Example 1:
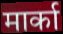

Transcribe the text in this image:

मार्का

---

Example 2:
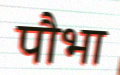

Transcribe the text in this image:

पौभा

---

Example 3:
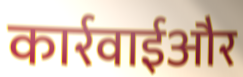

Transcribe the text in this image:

कार्रवाईऔर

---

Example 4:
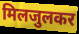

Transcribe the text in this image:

मिलजुलकर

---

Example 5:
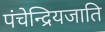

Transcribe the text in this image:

पंचेन्द्रियजाति